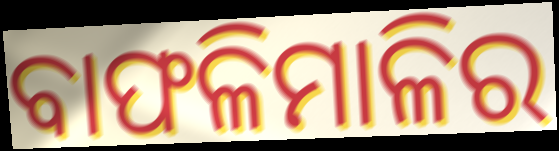
ବାଫଳିମାଳିର